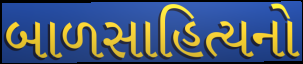
બાળસાહિત્યનો